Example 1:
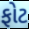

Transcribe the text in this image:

ફોટ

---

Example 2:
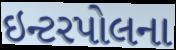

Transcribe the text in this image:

ઇન્ટરપોલના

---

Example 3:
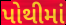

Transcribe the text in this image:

પોથીમાં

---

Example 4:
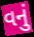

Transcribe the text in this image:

વનું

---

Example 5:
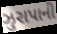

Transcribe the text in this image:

ઝુરાપાની